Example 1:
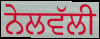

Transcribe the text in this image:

ਨੇਲਵੱਲੀ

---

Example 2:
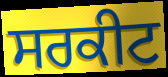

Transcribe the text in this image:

ਸਰਕੀਟ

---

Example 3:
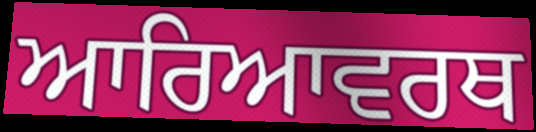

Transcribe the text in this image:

ਆਰਿਆਵਰਥ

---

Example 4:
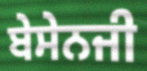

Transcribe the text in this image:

ਬੇਸੇਨਜੀ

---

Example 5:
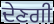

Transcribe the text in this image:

ਦੇਣਗੀ